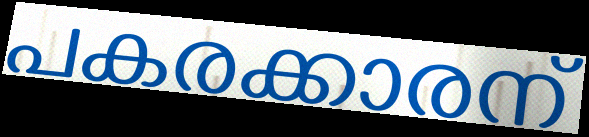
പകരക്കാരന്